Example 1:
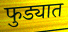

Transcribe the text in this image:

फुड्यात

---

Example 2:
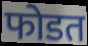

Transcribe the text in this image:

फोडत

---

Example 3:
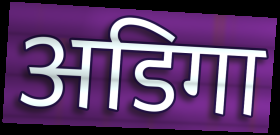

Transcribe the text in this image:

अडिगा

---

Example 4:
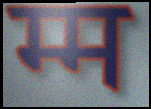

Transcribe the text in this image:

म्म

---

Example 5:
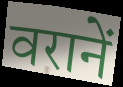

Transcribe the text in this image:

वरानें